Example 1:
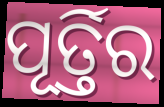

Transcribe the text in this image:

ପୂର୍ତ୍ତିର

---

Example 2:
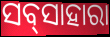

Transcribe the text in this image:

ସବ୍‌ସାହାରା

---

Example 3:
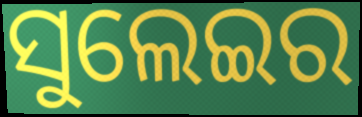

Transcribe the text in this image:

ସୁଲେଇର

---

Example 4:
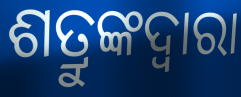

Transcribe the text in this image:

ଶତ୍ରୁଙ୍କଦ୍ୱାରା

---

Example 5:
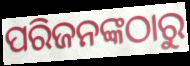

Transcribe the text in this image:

ପରିଜନଙ୍କଠାରୁ